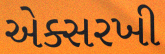
એક્સરખી